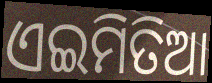
ଏଇମିତିଆ